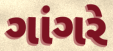
ગાંગરે